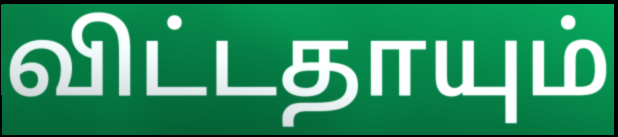
விட்டதாயும்